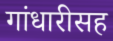
गांधारीसह